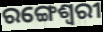
ରଙ୍ଗେଶ୍ୱରୀ